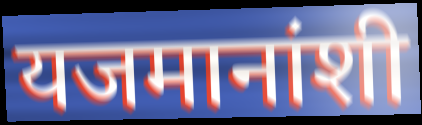
यजमानांशी